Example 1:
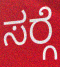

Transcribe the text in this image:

ಸರ್‍ಗೆ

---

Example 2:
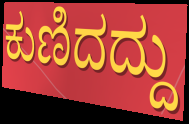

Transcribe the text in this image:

ಕುಣಿದದ್ದು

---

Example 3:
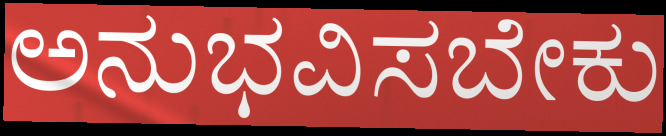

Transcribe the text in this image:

ಅನುಭವಿಸಬೇಕು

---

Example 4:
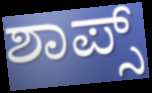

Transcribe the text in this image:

ಶಾಪ್ಸ್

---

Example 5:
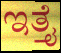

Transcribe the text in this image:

ಇತ್ತೈ